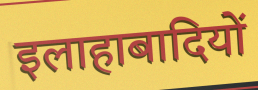
इलाहाबादियों